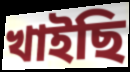
খাইছি